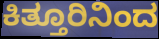
ಕಿತ್ತೂರಿನಿಂದ